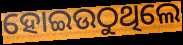
ହୋଇଉଠୁଥିଲେ